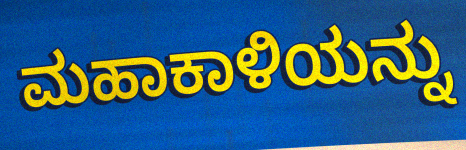
ಮಹಾಕಾಳಿಯನ್ನು